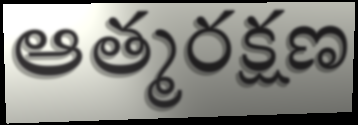
ఆత్మరక్షణ